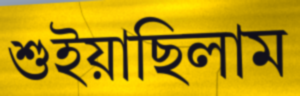
শুইয়াছিলাম